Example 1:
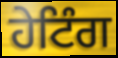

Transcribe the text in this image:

ਹੇਟਿੰਗ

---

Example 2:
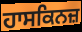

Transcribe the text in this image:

ਹਾਸਕਿਨਜ਼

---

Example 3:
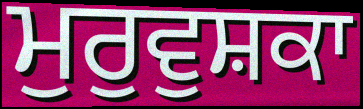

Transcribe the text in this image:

ਮੁਰੁਵੁਸ਼ਕਾ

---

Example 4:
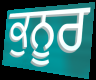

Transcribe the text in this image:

ਕੁਨੂਰ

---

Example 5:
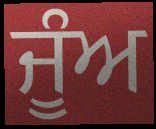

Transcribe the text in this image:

ਜੂੰਅ